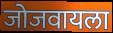
जोजवायला